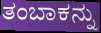
ತಂಬಾಕನ್ನು